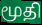
மூதி